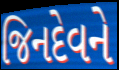
જિનદેવને